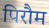
पिरौम